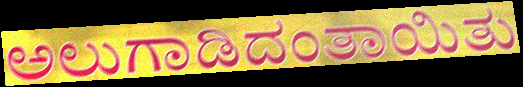
ಅಲುಗಾಡಿದಂತಾಯಿತು